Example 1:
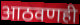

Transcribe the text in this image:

आठवणही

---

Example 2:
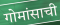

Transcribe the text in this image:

गोमांसाची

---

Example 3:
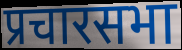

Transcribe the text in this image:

प्रचारसभा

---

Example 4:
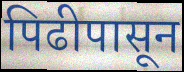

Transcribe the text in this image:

पिढीपासून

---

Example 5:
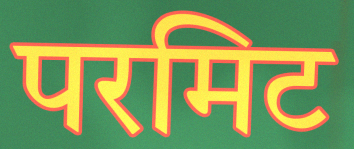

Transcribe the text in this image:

परमिट